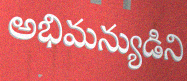
అభిమన్యుడిని